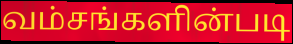
வம்சங்களின்படி